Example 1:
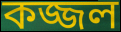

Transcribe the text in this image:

কজ্জল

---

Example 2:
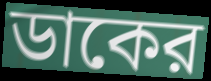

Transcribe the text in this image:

ডাকের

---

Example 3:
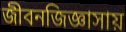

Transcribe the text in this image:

জীবনজিজ্ঞাসায়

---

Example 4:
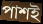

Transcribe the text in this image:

পাশই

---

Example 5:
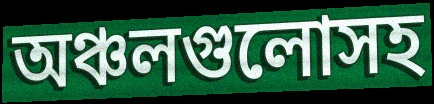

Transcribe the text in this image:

অঞ্চলগুলোসহ